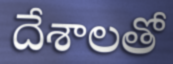
దేశాలతో